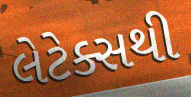
લેટેક્સથી